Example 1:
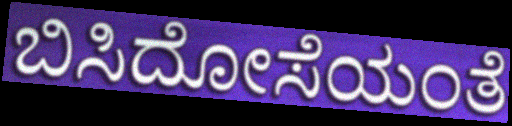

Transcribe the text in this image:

ಬಿಸಿದೋಸೆಯಂತೆ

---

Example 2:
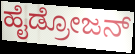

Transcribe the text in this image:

ಹೈಡ್ರೋಜನ್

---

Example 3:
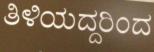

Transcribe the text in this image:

ತಿಳಿಯದ್ದರಿಂದ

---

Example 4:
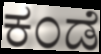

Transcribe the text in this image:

ಕಂಡೆ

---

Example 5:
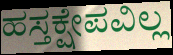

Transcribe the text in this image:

ಹಸ್ತಕ್ಷೇಪವಿಲ್ಲ